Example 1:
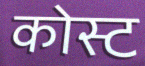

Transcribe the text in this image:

कोस्ट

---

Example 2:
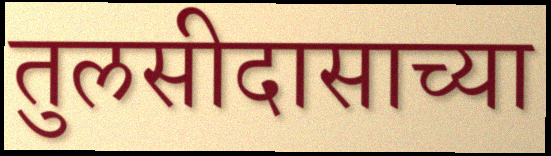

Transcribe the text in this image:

तुलसीदासाच्या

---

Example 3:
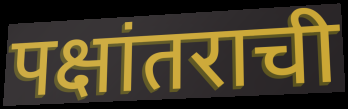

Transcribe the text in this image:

पक्षांतराची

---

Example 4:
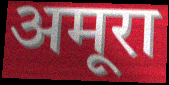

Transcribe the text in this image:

अमूरा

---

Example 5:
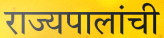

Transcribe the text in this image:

राज्यपालांची